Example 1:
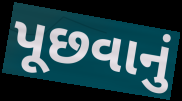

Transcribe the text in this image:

પૂછવાનું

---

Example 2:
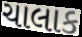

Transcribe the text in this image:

ચાલાક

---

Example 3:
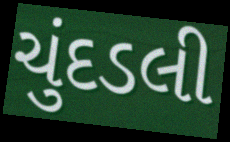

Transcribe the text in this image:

ચુંદડલી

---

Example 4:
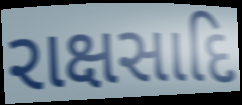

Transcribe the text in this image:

રાક્ષસાદિ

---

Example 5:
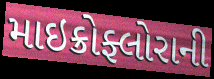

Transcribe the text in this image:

માઇક્રોફ્લોરાની